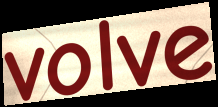
volve